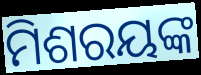
ମିଶରୟଙ୍କ